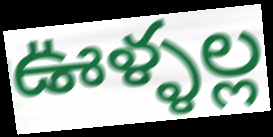
ఊళ్ళల్ల